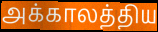
அக்காலத்திய